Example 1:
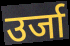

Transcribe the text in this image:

उर्जा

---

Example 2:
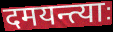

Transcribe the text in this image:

दमयन्त्याः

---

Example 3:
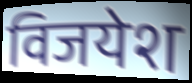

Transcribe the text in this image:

विजयेश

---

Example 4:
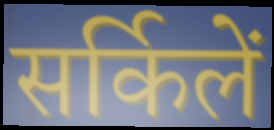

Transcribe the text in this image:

सर्किलें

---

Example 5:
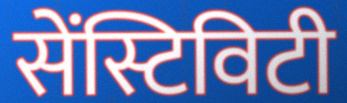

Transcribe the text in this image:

सेंस्टिविटी